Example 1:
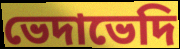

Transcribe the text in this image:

ভেদাভেদি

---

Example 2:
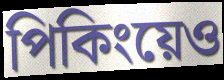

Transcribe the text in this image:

পিকিংয়েও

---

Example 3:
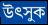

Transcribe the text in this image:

উৎসুক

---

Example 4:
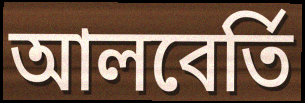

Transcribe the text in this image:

আলবের্তি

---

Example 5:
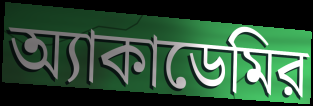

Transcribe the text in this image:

অ্যাকাডেমির